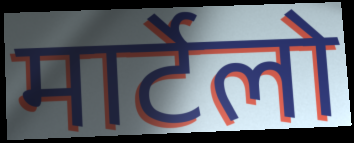
मार्टेलो